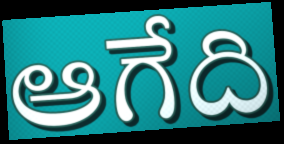
ఆగేది